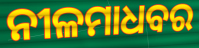
ନୀଳମାଧବର